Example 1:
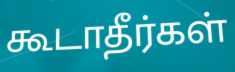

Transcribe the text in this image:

கூடாதீர்கள்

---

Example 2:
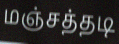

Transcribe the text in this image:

மஞ்சத்தடி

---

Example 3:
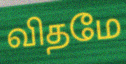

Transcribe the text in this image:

விதமே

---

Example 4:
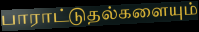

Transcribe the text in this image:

பாராட்டுதல்களையும்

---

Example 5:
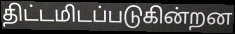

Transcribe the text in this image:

திட்டமிடப்படுகின்றன